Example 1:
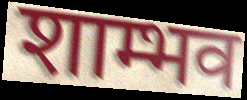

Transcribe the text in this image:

शाम्भव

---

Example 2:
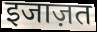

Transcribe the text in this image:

इजाज़त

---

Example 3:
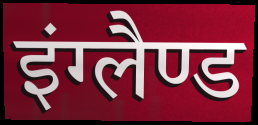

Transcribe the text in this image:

इंग्‍लैण्‍ड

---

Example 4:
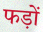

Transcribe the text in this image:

फड़ों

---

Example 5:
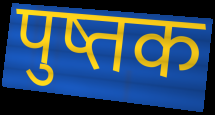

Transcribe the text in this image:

पुष्तक